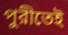
পুরীতেই